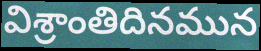
విశ్రాంతిదినమున